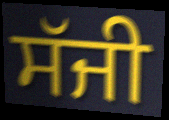
ਸੱਜੀ